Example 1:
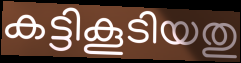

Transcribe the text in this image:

കട്ടികൂടിയതു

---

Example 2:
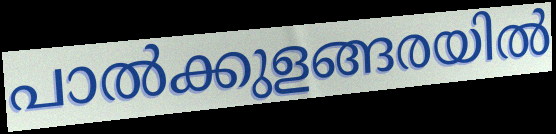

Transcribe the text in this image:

പാൽക്കുളങ്ങരയിൽ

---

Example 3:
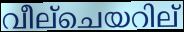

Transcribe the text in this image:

വീല്ചെയറില്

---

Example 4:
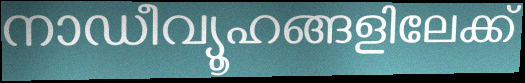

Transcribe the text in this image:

നാഡീവ്യൂഹങ്ങളിലേക്ക്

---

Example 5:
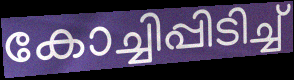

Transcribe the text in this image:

കോച്ചിപ്പിടിച്ച്